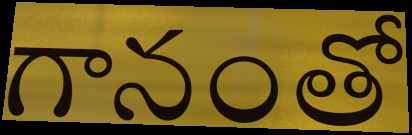
గానంతో